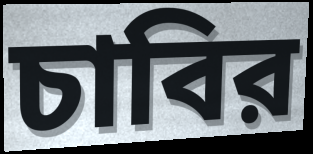
চাবির